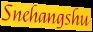
Snehangshu